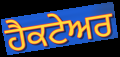
ਹੈਕਟੇਅਰ